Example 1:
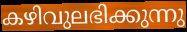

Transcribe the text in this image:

കഴിവുലഭിക്കുന്നു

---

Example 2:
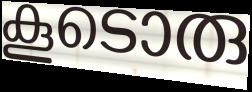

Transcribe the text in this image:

കൂടൊരു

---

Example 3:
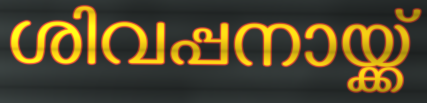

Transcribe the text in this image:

ശിവപ്പനായ്ക്ക്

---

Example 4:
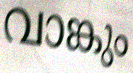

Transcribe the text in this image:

വാങ്കും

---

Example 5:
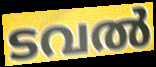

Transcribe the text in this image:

ടവൽ